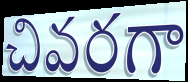
చివరగా